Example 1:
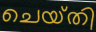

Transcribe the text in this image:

ചെയ്‌തി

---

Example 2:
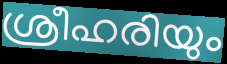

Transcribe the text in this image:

ശ്രീഹരിയും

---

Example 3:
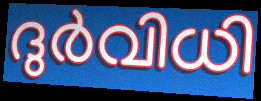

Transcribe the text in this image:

ദുർവിധി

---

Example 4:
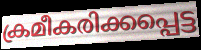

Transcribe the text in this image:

ക്രമീകരിക്കപ്പെട്ട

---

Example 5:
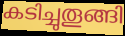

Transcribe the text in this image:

കടിച്ചുതൂങ്ങി